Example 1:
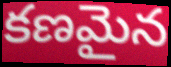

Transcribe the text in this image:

కణమైన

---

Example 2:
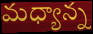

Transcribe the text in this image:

మధ్యాన్న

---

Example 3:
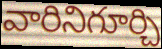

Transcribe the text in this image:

వారినిగూర్చి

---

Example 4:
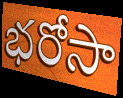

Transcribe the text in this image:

భరోసా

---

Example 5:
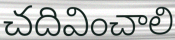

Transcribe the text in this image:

చదివించాలి